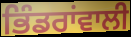
ਭਿੰਡਰਾਂਵਾਲੀ